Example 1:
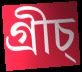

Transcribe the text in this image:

গ্ৰীচ্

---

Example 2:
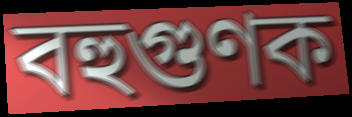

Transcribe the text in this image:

বহুগুণক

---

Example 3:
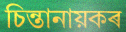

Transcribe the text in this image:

চিন্তানায়কৰ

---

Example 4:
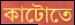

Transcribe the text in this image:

কাটোতে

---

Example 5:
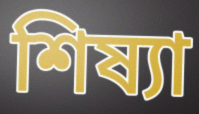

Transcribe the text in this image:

শিষ্যা